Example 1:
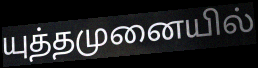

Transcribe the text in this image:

யுத்தமுனையில்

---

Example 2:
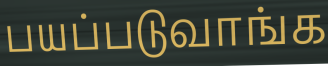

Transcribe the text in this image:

பயப்படுவாங்க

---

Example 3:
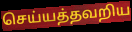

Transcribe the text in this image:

செய்யத்தவறிய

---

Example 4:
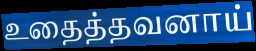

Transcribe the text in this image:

உதைத்தவனாய்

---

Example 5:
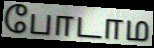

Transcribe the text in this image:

போடாம